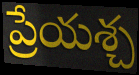
ప్రేయశ్చ